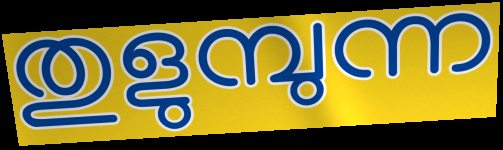
തുളുമ്പുന്ന